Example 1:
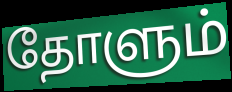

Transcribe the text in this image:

தோளும்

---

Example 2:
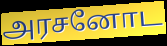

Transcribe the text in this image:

அரசனோட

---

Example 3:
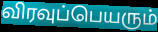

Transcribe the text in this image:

விரவுப்பெயரும்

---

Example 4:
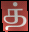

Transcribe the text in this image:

த்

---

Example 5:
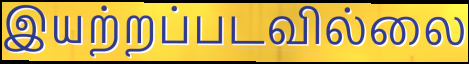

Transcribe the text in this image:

இயற்றப்படவில்லை